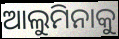
ଆଲୁମିନାକୁ